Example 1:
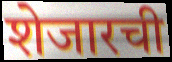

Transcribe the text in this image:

शेजारची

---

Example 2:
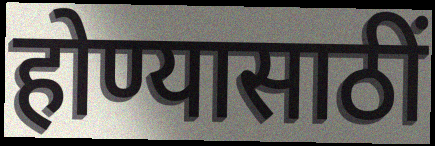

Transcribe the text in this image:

होण्यासाठीं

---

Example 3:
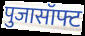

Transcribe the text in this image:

पुजासॉफ्ट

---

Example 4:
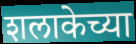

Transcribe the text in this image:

शलाकेच्या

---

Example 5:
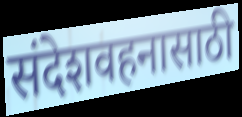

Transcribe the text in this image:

संदेशवहनासाठी